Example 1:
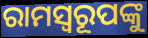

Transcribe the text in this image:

ରାମସ୍ୱରୂପଙ୍କୁ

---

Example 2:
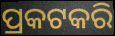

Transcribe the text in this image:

ପ୍ରକଟକରି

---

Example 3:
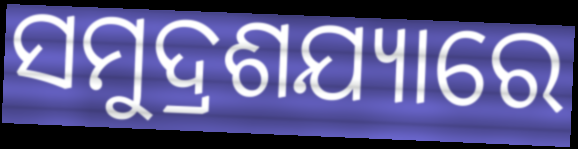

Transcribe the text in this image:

ସମୁଦ୍ରଶଯ୍ୟାରେ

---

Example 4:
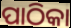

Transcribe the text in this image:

ପାଠିକା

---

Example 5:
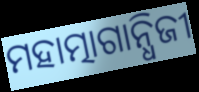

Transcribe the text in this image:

ମହାତ୍ମାଗାନ୍ଧିଜୀ